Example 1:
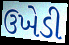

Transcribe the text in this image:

ઉખેડી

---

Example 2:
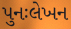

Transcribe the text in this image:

પુનઃલેખન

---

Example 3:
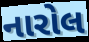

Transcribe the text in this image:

નારોલ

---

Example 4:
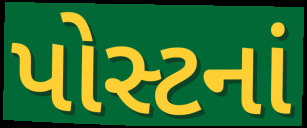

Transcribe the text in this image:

પોસ્ટનાં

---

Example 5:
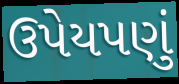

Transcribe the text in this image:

ઉપેયપણું